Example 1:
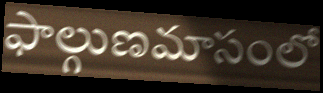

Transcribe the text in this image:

ఫాల్గుణమాసంలో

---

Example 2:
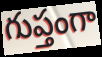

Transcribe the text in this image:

గుప్తంగా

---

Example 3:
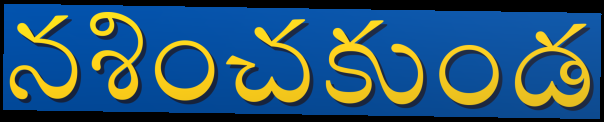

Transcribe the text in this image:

నశించకుండ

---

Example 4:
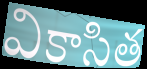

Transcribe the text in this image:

వికాసిత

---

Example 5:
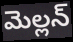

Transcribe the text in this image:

మెల్లన్